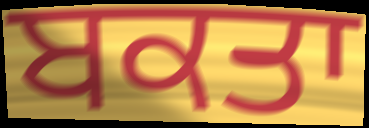
ਬਕਤਾ